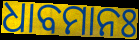
ଧାବମାନଃ